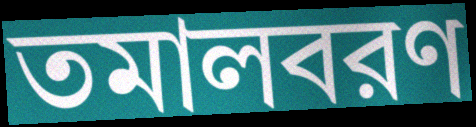
তমালবরণ